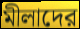
মীলাদের